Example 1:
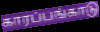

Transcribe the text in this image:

காரப்பங்காடு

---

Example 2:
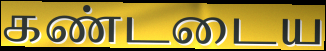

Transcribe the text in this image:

கண்டடைய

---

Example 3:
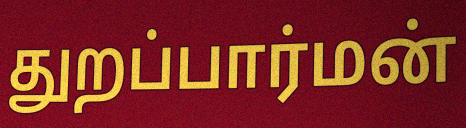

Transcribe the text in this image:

துறப்பார்மன்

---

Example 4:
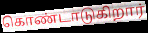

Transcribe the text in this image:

கொண்டாடுகிறார்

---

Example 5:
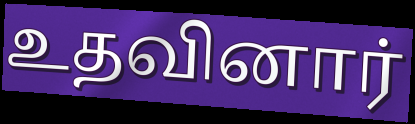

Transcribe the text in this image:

உதவினார்